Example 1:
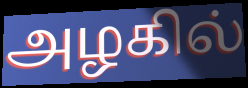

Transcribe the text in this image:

அழகில்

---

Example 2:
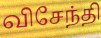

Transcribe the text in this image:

விசேந்தி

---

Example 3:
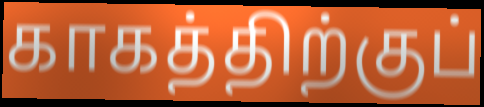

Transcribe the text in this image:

காகத்திற்குப்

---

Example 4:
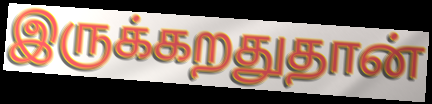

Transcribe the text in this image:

இருக்கறதுதான்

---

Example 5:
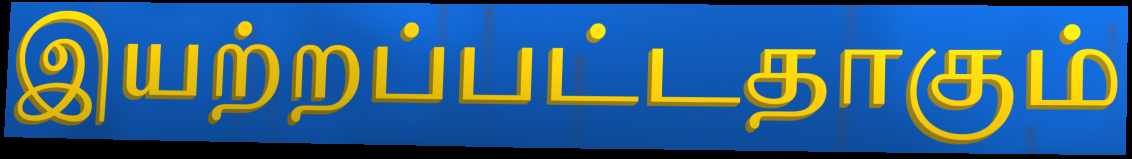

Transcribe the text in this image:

இயற்றப்பட்டதாகும்